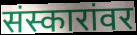
संस्कारांवर